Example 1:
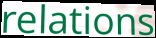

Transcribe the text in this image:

relations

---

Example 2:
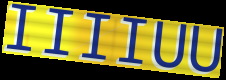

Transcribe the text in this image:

IIIIUU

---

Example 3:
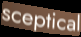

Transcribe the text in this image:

sceptical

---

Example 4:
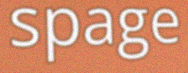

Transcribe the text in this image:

spage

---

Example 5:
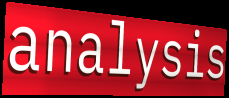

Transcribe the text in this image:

analysis